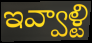
ఇవ్వాళ్టి